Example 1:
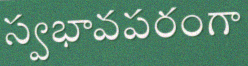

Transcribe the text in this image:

స్వభావపరంగా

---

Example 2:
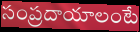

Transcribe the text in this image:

సంప్రదాయాలంటే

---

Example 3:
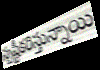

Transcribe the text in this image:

స్పష్టీకరిస్తున్నాయి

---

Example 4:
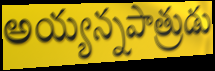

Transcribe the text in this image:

అయ్యన్నపాత్రుడు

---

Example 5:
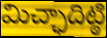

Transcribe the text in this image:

మిచ్ఛాదిట్ఠి